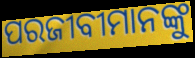
ପରଜୀବୀମାନଙ୍କୁ